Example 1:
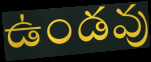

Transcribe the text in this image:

ఉండవు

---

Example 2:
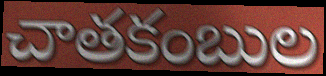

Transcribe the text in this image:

చాతకంబుల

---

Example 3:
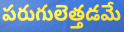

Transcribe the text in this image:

పరుగులెత్తడమే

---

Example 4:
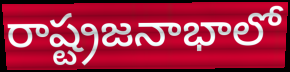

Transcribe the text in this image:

రాష్ట్రజనాభాలో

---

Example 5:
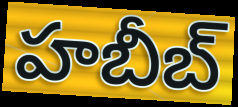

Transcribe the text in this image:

హబీబ్